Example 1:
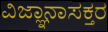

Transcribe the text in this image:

ವಿಜ್ಞಾನಾಸಕ್ತರ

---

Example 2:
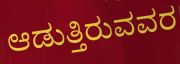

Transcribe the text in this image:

ಆಡುತ್ತಿರುವವರ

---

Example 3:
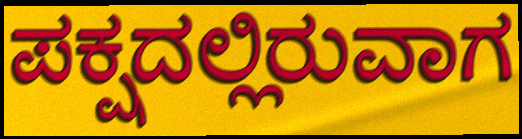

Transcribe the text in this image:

ಪಕ್ಷದಲ್ಲಿರುವಾಗ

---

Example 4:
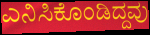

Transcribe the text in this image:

ಎನಿಸಿಕೊಂಡಿದ್ದವು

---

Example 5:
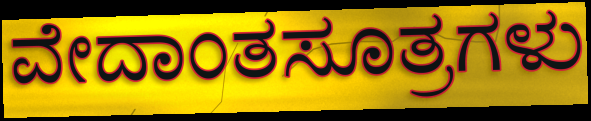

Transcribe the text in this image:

ವೇದಾಂತಸೂತ್ರಗಳು